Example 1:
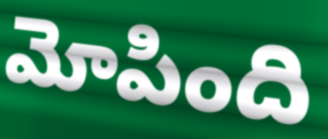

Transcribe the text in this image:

మోపింది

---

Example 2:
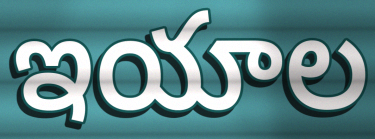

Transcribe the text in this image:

ఇయాల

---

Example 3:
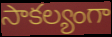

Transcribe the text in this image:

సాకల్యంగా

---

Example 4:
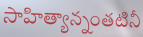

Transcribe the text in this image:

సాహిత్యాన్నంతటినీ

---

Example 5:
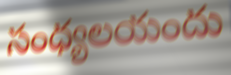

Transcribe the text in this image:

సంధ్యలయందు